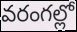
వరంగల్లో